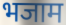
भजाम